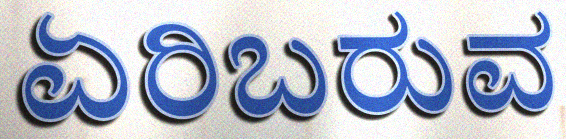
ಏರಿಬರುವ